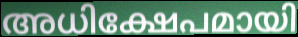
അധിക്ഷേപമായി